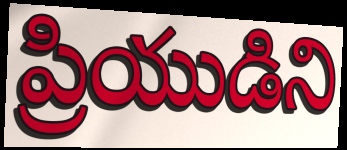
ప్రియుడిని